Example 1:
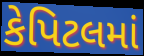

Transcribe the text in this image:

કેપિટલમાં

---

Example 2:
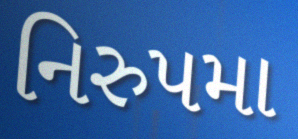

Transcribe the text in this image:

નિરુપમા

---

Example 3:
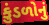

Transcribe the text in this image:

કુંડળોનું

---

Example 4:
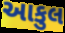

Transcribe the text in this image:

આકુલ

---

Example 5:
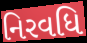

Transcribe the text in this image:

નિરવધિ